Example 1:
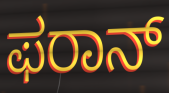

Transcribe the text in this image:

ಫರಾನ್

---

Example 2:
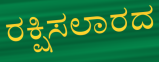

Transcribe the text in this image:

ರಕ್ಷಿಸಲಾರದ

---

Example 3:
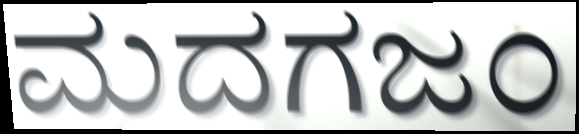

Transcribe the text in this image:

ಮದಗಜಂ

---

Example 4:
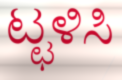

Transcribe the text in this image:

ಟ್ಟಳಿಸಿ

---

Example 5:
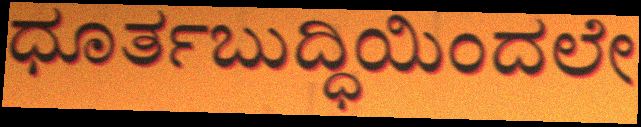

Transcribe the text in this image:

ಧೂರ್ತಬುದ್ಧಿಯಿಂದಲೇ